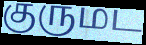
குருமட